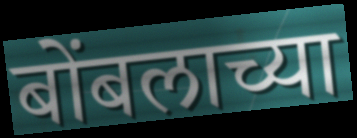
बोंबलाच्या